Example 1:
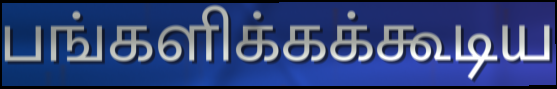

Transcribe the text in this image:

பங்களிக்கக்கூடிய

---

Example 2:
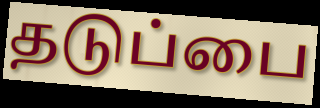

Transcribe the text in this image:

தடுப்பை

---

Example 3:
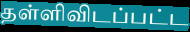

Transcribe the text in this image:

தள்ளிவிடப்பட்ட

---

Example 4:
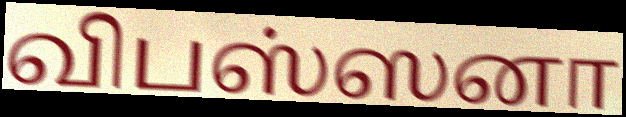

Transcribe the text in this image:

விபஸ்ஸனா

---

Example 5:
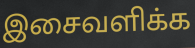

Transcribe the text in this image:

இசைவளிக்க